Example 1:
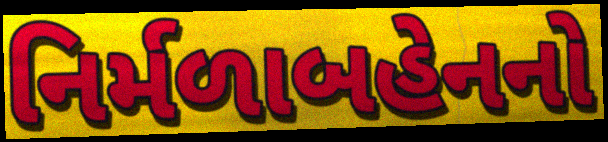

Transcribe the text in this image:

નિર્મળાબહેનનો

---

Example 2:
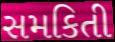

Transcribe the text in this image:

સમકિતી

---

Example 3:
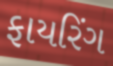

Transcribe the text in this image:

ફાયરિંગ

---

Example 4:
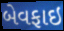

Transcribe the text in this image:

બેવફાઇ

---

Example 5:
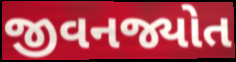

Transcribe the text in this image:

જીવનજ્યોત